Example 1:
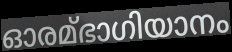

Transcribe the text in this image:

ഓരമ്ഭാഗിയാനം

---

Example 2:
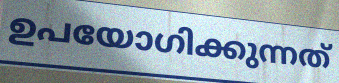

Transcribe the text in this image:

ഉപയോഗിക്കുന്നത്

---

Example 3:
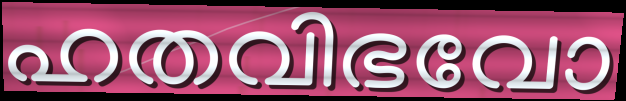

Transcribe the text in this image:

ഹതവിഭവോ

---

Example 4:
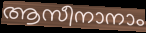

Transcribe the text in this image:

ആസീനാനാം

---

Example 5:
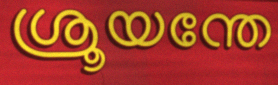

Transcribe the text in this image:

ശ്രൂയന്തേ